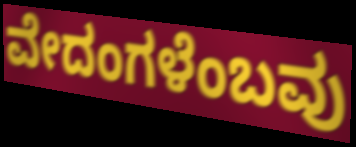
ವೇದಂಗಳೆಂಬವು